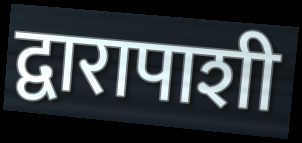
द्वारापाशी